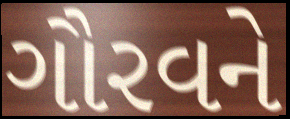
ગૌરવને